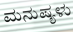
ಮನುಷ್ಯಳು